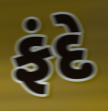
ફંદે